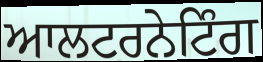
ਆਲਟਰਨੇਟਿੰਗ